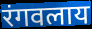
रंगवलाय